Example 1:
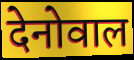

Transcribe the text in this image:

देनोवाल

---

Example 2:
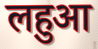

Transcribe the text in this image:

लहुआ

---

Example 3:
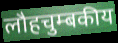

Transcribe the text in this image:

लौहचुम्बकीय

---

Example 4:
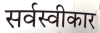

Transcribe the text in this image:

सर्वस्वीकार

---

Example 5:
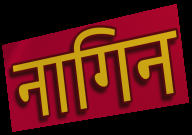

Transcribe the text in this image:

नागिन